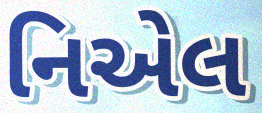
નિએલ